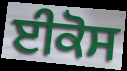
ਈਕੋਸ